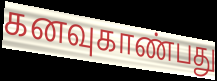
கனவுகாண்பது